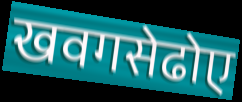
खवगसेढोए